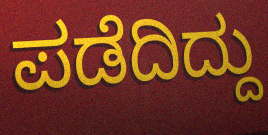
ಪಡೆದಿದ್ದು